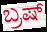
ಬ್ರಷ್